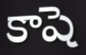
కాషె